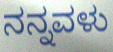
ನನ್ನವಳು